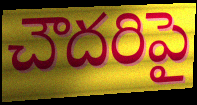
చౌదరిపై